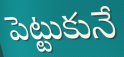
పెట్టుకునే